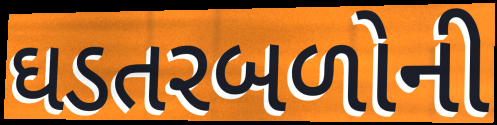
ઘડતરબળોની